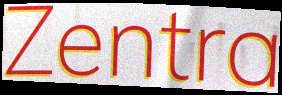
Zentra